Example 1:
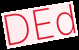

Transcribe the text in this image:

DEd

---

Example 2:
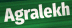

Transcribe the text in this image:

Agralekh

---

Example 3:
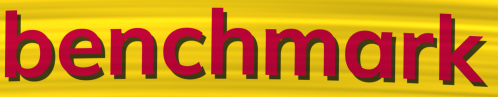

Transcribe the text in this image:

benchmark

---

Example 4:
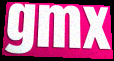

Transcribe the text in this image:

gmx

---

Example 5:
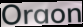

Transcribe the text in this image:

Oraon